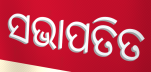
ସଭାପତିତ